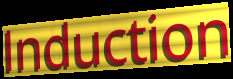
Induction